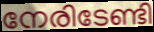
നേരിടേണ്ടി